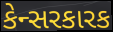
કેન્સરકારક